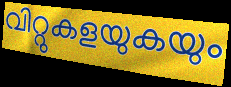
വിറ്റുകളയുകയും